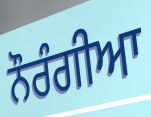
ਨੌਰੰਗੀਆ